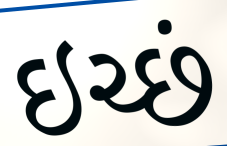
ઇચ્છં